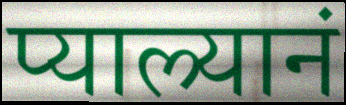
प्याल्यानं